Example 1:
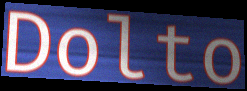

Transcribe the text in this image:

Dolto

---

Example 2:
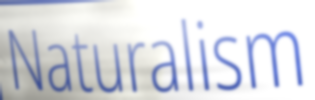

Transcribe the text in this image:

Naturalism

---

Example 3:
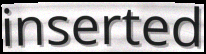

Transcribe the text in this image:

inserted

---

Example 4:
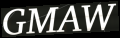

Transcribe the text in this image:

GMAW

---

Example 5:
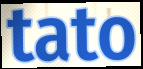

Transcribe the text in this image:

tato